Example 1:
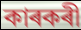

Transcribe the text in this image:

কাৰকৰী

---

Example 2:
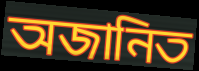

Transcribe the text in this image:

অজানিত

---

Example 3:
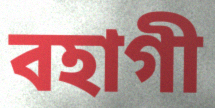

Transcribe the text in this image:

বহাগী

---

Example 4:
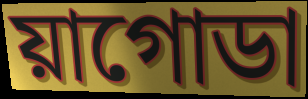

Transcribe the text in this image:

য়াগোডা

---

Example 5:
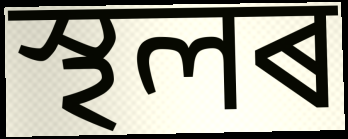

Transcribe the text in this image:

স্থলৰ